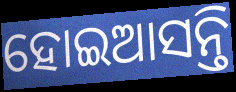
ହୋଇଆସନ୍ତି